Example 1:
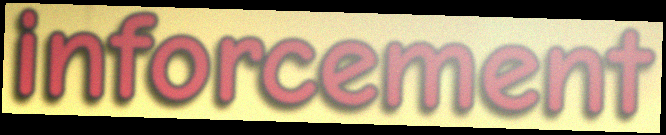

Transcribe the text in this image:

inforcement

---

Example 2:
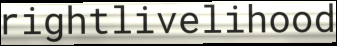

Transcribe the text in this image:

rightlivelihood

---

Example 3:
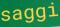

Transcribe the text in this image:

saggi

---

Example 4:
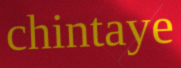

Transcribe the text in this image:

chintaye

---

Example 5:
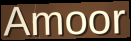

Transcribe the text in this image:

Amoor